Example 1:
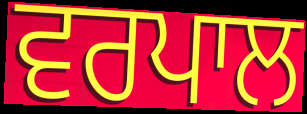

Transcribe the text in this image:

ਵਰਪਾਲ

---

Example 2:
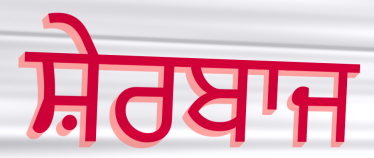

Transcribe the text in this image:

ਸ਼ੇਰਬਾਜ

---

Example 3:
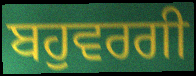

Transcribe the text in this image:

ਬਹੁਵਰਗੀ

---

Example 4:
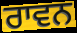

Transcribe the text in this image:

ਰਾਵਨ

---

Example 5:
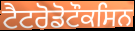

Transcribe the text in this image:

ਟੈਟਰੋਡੋਟੌਕਸਿਨ